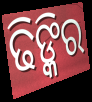
ଢିଙ୍କିର